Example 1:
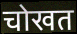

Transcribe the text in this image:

चोखत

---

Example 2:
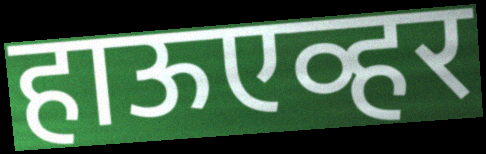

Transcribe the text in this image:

हाऊएव्हर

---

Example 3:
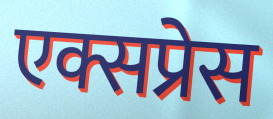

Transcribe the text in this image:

एक्सप्रेस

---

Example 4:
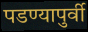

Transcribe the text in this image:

पडण्यापुर्वी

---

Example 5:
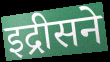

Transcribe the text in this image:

इद्रीसने